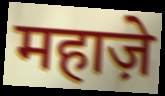
महाज़े